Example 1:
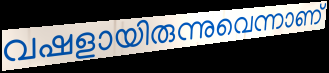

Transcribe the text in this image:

വഷളായിരുന്നുവെന്നാണ്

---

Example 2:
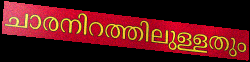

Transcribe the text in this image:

ചാരനിറത്തിലുള്ളതും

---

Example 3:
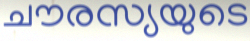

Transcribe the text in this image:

ചൗരസ്യയുടെ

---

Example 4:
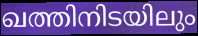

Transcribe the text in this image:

ഖത്തിനിടയിലും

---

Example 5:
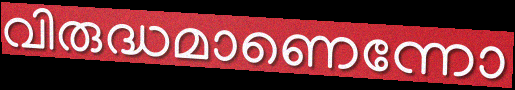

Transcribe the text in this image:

വിരുദ്ധമാണെന്നോ